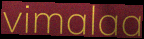
vimalaa